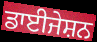
ਡਾਈਜੇਸ਼ਨ